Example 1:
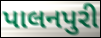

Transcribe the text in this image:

પાલનપુરી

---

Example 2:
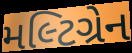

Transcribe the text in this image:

મલ્ટિગ્રેન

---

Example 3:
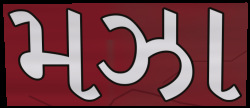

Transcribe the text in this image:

મઝા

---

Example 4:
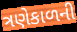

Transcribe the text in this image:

ત્રણેકાળની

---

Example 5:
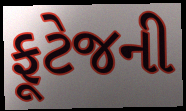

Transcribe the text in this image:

ફૂટેજની